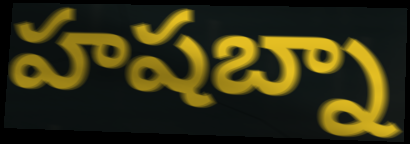
హషబ్నా